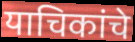
याचिकांचे